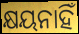
କ୍ଷୟନାହିଁ